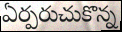
ఏర్పరుచుకొన్న